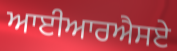
ਆਈਆਰਐਸਏ